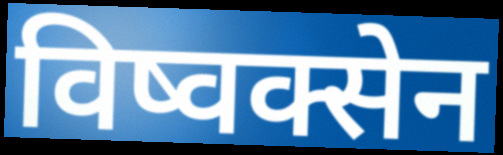
विष्वक्सेन